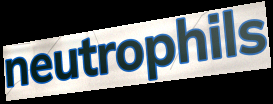
neutrophils